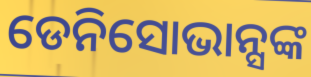
ଡେନିସୋଭାନ୍ସଙ୍କ